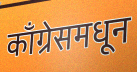
काँग्रेसमधून